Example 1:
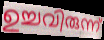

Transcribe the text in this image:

ഉച്ചവിരുന്ന്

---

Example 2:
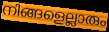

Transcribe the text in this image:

നിങ്ങളെല്ലാരും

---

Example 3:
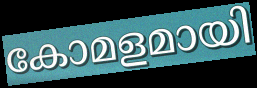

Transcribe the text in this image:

കോമളമായി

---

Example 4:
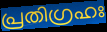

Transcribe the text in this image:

പ്രതിഗ്രഹഃ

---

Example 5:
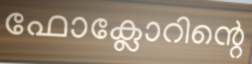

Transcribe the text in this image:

ഫോക്ലോറിന്റെ